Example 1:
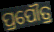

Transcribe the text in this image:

ପ୍ରପୌତ୍ର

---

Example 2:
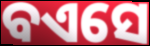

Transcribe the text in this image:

ବଏସେ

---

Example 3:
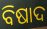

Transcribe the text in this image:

ବିଷାଦ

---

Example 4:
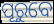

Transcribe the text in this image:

ପୂରୁବେ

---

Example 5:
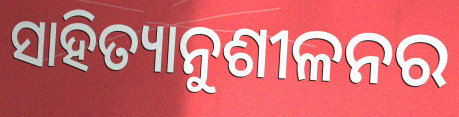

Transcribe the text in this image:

ସାହିତ୍ୟାନୁଶୀଳନର